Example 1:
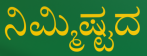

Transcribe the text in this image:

ನಿಮ್ಮಿಷ್ಟದ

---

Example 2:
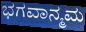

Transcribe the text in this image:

ಭಗವಾನ್ಮಮ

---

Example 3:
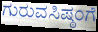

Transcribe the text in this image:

ಗುರುವಸಿಷ್ಠಂಗೆ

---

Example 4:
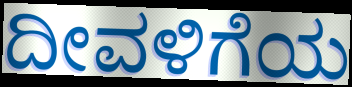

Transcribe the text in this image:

ದೀವಳಿಗೆಯ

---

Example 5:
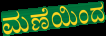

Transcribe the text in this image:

ಮಣೆಯಿಂದ